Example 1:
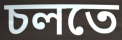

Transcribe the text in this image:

চলতে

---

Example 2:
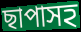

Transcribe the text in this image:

ছাপাসহ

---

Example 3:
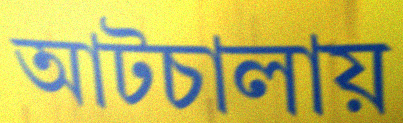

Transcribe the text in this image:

আটচালায়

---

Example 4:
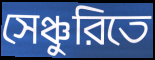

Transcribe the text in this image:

সেঞ্চুরিতে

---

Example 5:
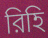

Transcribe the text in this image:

রিহি